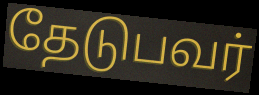
தேடுபவர்